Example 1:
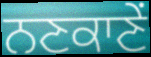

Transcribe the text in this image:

ਨਣਕਾਣੇਂ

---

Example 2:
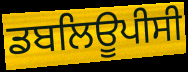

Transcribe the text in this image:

ਡਬਲਿਊਪੀਸੀ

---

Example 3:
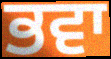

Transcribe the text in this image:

ਭਵਾ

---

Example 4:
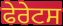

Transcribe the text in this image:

ਫੇਰੇਟਸ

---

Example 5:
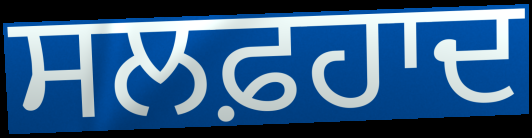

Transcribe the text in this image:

ਸਲਫ਼ਹਾਦ